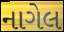
નાગેલ